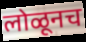
लोळूनच